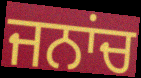
ਜਨਾਂਚ